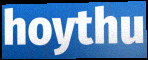
hoythu